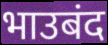
भाउबंद